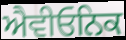
ਐਵੀਓਨਿਕ